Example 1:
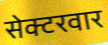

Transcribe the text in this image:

सेक्टरवार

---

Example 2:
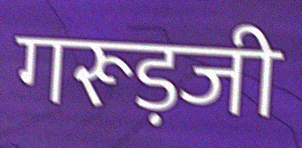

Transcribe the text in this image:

गरूड़जी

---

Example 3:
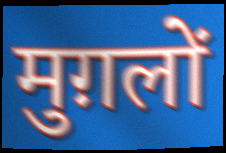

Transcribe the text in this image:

मुग़लों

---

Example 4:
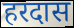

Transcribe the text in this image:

हरदास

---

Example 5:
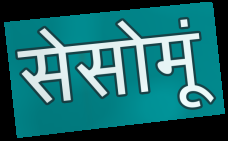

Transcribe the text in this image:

सेसोमूं